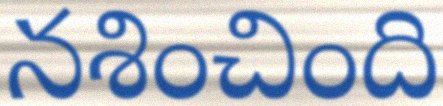
నశించింది